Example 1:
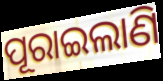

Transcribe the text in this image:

ପୂରାଇଲାଣି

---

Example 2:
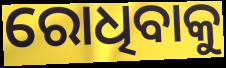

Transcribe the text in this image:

ରୋଧିବାକୁ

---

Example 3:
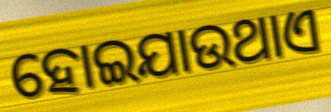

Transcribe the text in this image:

ହୋଇଯାଉଥାଏ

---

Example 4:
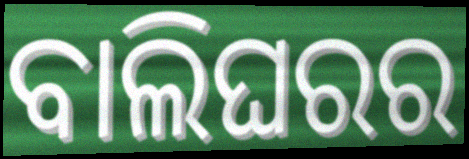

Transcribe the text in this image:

ବାଲିଘରର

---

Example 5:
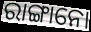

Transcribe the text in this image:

ରାଙ୍ଗାନୋ